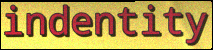
indentity